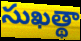
సుఖత్థా